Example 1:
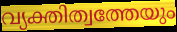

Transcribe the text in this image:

വ്യക്തിത്വത്തേയും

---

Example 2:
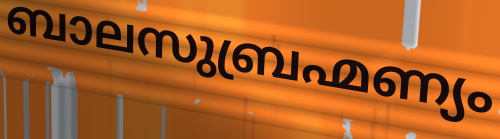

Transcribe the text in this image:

ബാലസുബ്രഹ്മണ്യം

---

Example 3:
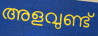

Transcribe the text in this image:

അളവുണ്ട്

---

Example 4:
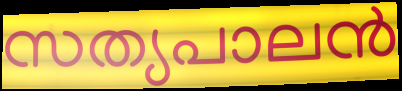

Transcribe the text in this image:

സത്യപാലൻ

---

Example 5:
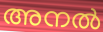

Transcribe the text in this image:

അനൽ